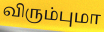
விரும்புமா